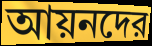
আয়নদের